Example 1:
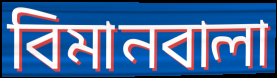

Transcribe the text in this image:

বিমানবালা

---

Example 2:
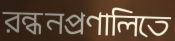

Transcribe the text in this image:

রন্ধনপ্রণালিতে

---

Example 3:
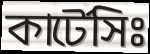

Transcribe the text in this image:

কার্টেসিঃ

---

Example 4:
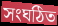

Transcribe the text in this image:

সংঘঠিত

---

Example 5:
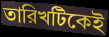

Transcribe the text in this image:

তারিখটিকেই